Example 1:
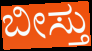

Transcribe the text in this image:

ಬೀಸ್ತು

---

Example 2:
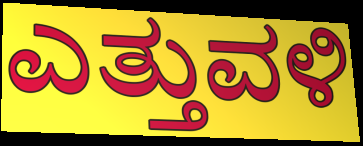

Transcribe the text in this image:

ಎತ್ತುವಳಿ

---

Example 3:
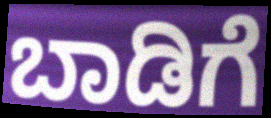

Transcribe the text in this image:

ಬಾಡಿಗೆ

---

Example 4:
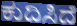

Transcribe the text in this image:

ಕುದಿಸಿದೆ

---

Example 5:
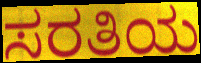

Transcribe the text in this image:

ಸರತಿಯ